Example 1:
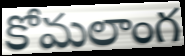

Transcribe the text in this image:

కోమలాంగ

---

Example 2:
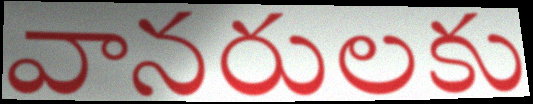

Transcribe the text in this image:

వానరులకు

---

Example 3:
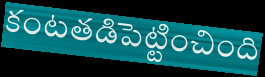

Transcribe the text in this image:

కంటతడిపెట్టించింది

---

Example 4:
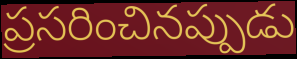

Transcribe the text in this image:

ప్రసరించినప్పుడు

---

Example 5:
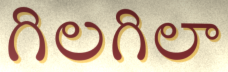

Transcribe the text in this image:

గిలగిలా